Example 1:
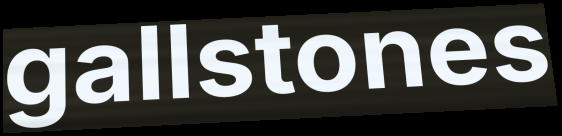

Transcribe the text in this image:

gallstones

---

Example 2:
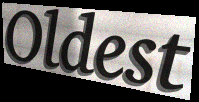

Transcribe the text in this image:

Oldest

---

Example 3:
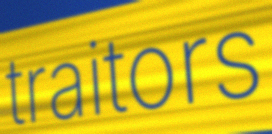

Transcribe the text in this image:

traitors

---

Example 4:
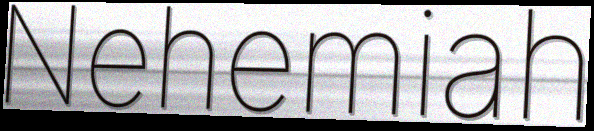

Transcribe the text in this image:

Nehemiah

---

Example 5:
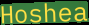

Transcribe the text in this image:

Hoshea